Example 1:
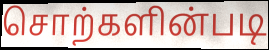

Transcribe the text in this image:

சொற்களின்படி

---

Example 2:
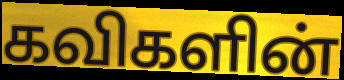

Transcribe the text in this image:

கவிகளின்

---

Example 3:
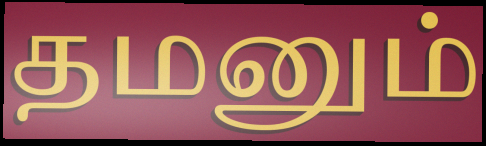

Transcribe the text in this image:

தமனும்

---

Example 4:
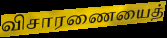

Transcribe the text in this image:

விசாரணையைத்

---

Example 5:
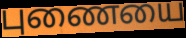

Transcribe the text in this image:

புணையை